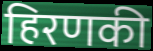
हिरणकी